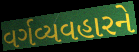
વર્ગવ્યવહારને